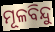
ମୂଳବିନ୍ଦୁ